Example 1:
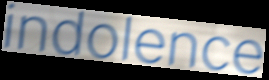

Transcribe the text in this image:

indolence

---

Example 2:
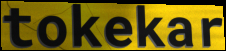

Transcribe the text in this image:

tokekar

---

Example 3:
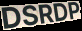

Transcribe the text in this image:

DSRDP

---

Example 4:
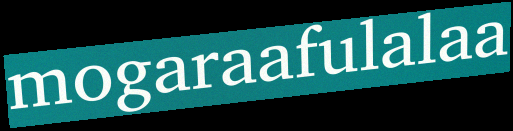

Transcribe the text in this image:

mogaraafulalaa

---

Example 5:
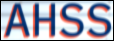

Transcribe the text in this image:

AHSS